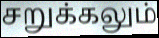
சறுக்கலும்